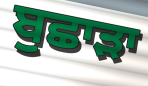
ਬੁਛਾੜਾ